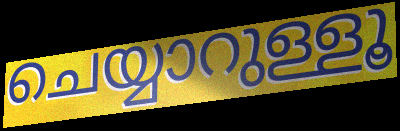
ചെയ്യാറുള്ളൂ